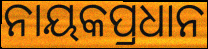
ନାୟକପ୍ରଧାନ